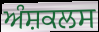
ਅੰਸ਼ਕਲਸ